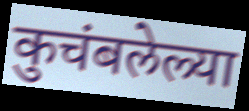
कुचंबलेल्या